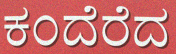
ಕಂದೆರೆದ